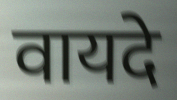
वायदे